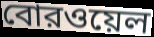
বোরওয়েল